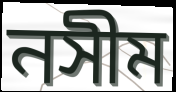
নসীম